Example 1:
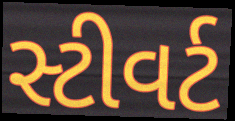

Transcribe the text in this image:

સ્ટીવર્ટ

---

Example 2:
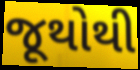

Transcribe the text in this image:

જૂથોથી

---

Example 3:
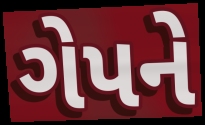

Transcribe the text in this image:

ગેપને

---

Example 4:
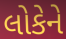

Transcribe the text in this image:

લોકેને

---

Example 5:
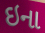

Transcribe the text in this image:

ઇના